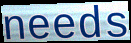
needs